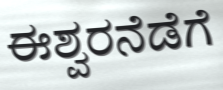
ಈಶ್ವರನೆಡೆಗೆ